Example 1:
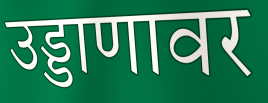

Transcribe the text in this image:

उड्डाणावर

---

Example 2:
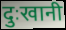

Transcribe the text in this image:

दुःखानी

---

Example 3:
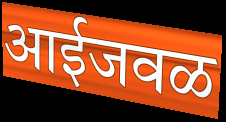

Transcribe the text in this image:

आईजवळ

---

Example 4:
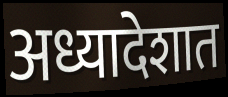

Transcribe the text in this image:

अध्यादेशात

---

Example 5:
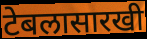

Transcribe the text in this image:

टेबलासारखी